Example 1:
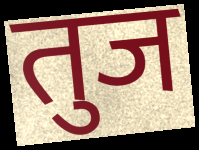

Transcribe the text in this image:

तुज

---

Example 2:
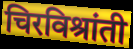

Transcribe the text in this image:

चिरविश्रांती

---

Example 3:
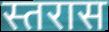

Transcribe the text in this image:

स्तरास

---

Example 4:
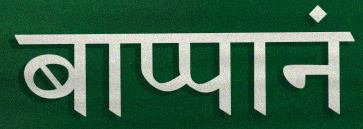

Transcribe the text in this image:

बाप्पानं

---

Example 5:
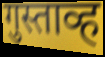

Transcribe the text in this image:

गुस्ताव्ह